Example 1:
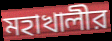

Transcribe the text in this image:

মহাখালীর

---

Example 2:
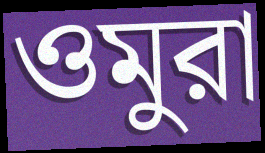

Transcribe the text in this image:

ওমুরা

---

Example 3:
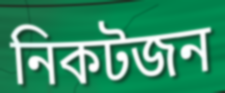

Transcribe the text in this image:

নিকটজন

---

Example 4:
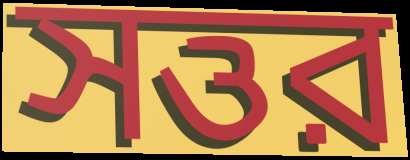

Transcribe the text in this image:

সত্তর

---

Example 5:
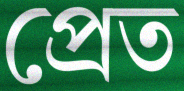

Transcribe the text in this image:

প্রেত